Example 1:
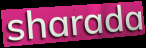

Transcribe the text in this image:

sharada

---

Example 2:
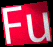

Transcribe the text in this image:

Fu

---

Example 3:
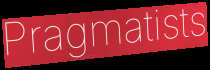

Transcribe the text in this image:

Pragmatists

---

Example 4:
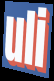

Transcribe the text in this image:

uli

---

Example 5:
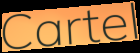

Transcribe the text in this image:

Cartel